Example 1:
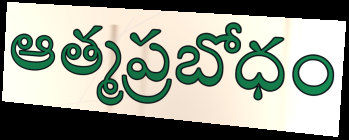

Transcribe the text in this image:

ఆత్మప్రబోధం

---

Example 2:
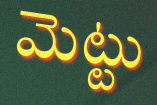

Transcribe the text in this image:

మెట్టు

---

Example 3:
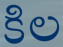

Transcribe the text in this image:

కిల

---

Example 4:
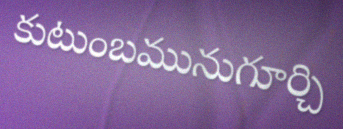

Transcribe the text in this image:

కుటుంబమునుగూర్చి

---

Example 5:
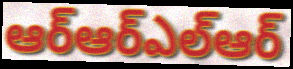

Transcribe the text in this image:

ఆర్ఆర్ఎల్ఆర్